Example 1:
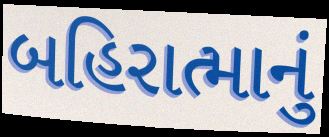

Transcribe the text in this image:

બહિરાત્માનું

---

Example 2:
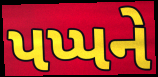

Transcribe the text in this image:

પપ્પને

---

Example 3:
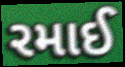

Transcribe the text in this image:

રમાઈ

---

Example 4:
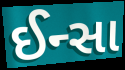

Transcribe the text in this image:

ઈન્સા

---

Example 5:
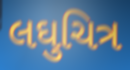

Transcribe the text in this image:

લઘુચિત્ર